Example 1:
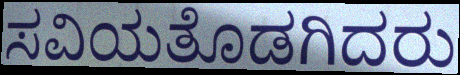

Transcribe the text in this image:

ಸವಿಯತೊಡಗಿದರು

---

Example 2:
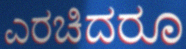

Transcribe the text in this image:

ಎರಚಿದರೂ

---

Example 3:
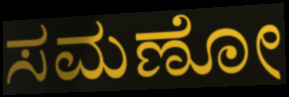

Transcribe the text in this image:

ಸಮಣೋ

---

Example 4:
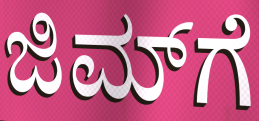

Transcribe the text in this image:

ಜಿಮ್‌ಗೆ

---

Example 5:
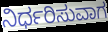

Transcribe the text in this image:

ನಿರ್ಧರಿಸುವಾಗ